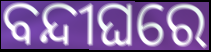
ବନ୍ଦୀଘରେ